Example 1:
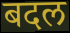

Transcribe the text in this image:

बदल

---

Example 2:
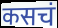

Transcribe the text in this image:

कसचं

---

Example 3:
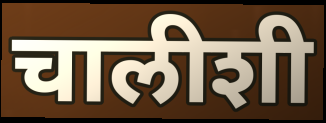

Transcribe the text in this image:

चालीशी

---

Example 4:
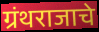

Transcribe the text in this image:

ग्रंथराजाचे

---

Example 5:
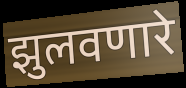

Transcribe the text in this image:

झुलवणारे